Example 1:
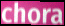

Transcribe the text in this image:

chora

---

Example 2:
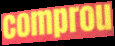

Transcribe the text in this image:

comprou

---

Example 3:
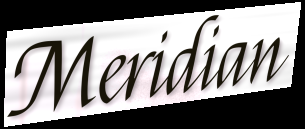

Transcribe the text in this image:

Meridian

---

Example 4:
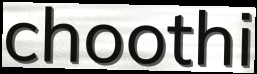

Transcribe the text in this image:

choothi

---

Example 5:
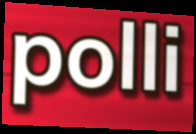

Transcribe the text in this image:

polli